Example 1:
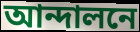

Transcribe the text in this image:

আন্দালনে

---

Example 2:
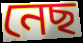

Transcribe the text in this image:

নেছ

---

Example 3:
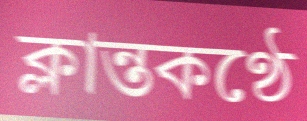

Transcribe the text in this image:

ক্লান্তকণ্ঠে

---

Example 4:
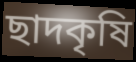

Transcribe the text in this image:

ছাদকৃষি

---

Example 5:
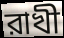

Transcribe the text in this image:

রাখী